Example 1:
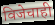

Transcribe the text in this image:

विजेचाही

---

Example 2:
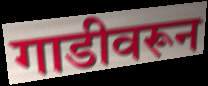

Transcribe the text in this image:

गाडीवरून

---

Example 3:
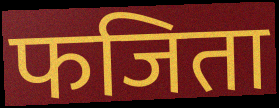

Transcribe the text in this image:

फजिता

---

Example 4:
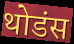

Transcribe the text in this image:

थोडंस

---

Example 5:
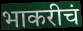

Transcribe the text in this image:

भाकरीचं